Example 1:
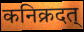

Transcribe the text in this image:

कनिक्रदत्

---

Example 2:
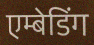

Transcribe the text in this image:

एम्बेडिंग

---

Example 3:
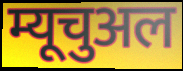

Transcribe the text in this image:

म्यूचुअल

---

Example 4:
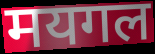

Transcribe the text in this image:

मयगल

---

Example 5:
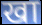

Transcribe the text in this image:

खा